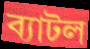
ব্যাটল